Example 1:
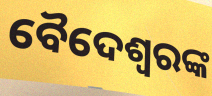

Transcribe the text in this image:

ବୈଦେଶ୍ୱରଙ୍କ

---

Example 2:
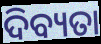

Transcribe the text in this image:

ଦିବ୍ୟତା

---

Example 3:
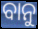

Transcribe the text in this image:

ବାନୁ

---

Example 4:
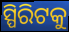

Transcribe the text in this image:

ସ୍ପିରିଟକୁ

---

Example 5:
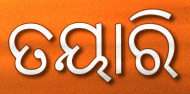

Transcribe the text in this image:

ତୟାରି